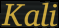
Kali